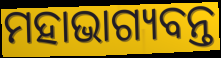
ମହାଭାଗ୍ୟବନ୍ତ